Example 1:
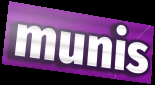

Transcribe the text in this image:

munis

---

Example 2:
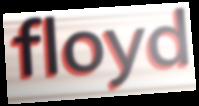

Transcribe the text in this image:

floyd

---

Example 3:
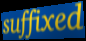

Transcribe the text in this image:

suffixed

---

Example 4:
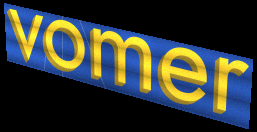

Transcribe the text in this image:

vomer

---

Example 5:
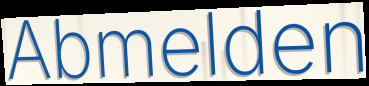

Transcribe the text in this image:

Abmelden